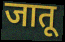
जातू